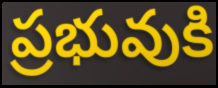
ప్రభువుకి